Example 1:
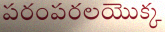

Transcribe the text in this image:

పరంపరలయొక్క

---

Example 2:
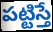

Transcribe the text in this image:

పట్టిస్తే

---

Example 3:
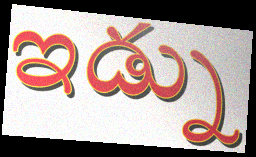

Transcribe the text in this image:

ఇడ్ను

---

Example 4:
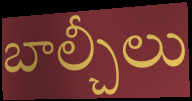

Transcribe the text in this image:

బాల్చీలు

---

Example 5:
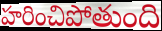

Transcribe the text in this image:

హరించిపోతుంది